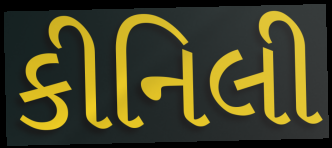
કીનિલી